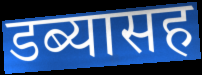
डब्यासह